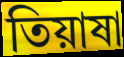
তিয়াষা